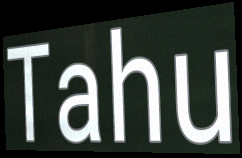
Tahu